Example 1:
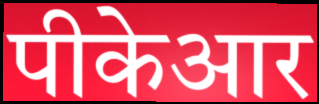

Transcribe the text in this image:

पीकेआर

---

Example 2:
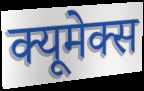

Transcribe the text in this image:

क्यूमेक्स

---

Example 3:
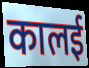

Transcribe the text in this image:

कालई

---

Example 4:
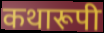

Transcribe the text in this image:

कथारूपी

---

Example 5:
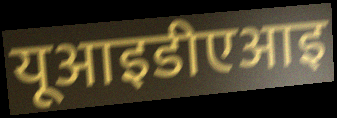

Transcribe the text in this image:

यूआइडीएआइ